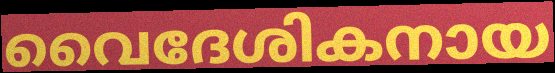
വൈദേശികനായ